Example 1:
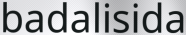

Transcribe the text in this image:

badalisida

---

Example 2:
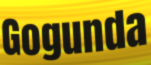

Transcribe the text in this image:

Gogunda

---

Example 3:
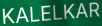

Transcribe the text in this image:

KALELKAR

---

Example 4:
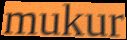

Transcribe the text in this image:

mukur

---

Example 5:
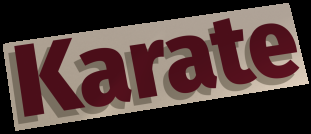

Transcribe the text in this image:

Karate